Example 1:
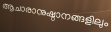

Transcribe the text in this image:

ആചാരാനുഷ്ഠാനങ്ങളിലും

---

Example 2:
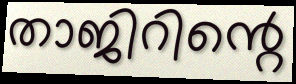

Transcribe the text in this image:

താജിറിന്റെ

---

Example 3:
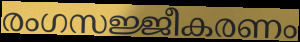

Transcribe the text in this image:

രംഗസജ്ജീകരണം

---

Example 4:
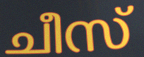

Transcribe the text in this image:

ചീസ്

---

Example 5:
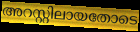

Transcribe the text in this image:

അറസ്റ്റിലായതോടെ